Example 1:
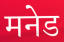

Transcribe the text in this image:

मनेड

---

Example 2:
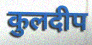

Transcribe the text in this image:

कुलदीप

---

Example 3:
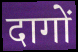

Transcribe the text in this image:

दागों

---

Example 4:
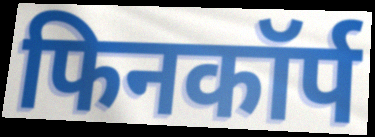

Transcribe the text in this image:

फिनकॉर्प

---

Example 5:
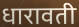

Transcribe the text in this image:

धारावती